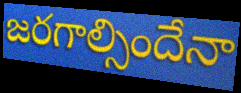
జరగాల్సిందేనా